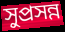
সুপ্রসন্ন